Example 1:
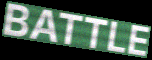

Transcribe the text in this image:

BATTLE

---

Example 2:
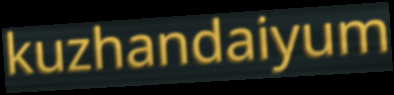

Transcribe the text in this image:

kuzhandaiyum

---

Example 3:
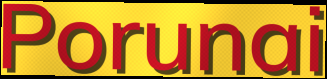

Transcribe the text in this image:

Porunai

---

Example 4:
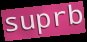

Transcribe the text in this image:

suprb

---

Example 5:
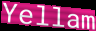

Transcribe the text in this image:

Yellam